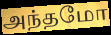
அந்தமோ